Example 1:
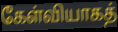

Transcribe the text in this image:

கேள்வியாகத்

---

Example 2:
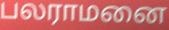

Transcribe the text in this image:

பலராமனை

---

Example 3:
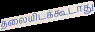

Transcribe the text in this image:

தலையிடக்கூடாது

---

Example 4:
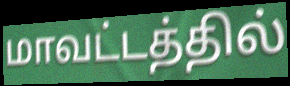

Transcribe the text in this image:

மாவட்டத்தில்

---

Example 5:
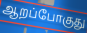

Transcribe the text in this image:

ஆறப்போகுது